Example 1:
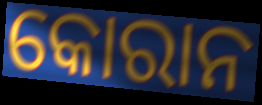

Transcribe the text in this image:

କୋରାନ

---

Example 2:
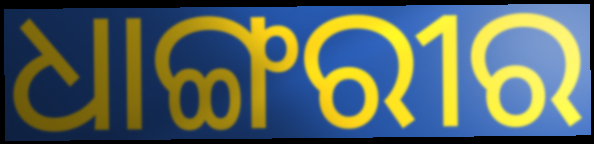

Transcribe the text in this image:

ଧାଙ୍ଗରୀର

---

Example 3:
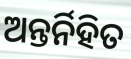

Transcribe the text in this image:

ଅନ୍ତର୍ନିହିତ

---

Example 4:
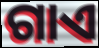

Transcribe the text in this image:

ଗାଏ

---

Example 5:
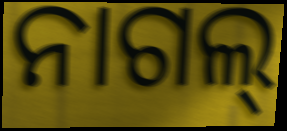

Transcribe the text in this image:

ନାଗଲ୍